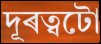
দূৰত্বটো